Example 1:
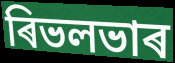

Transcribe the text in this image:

ৰিভলভাৰ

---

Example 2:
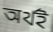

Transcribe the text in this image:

অৰ্থই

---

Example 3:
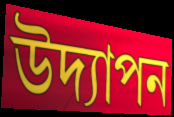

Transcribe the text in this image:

উদ্যাপন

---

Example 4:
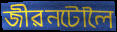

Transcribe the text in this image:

জীৱনটোলৈ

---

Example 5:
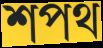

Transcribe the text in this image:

শপথ